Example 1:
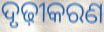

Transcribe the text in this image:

ଦୃଢ଼ୀକରଣ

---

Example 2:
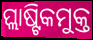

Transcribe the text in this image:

ପ୍ଲାଷ୍ଟିକମୁକ୍ତ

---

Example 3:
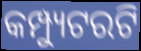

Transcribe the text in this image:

କମ୍ପ୍ୟୁଟରଟି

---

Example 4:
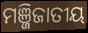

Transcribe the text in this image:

ମଞ୍ଜିଜାତୀୟ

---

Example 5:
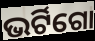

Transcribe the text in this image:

ଭର୍ଟିଗୋ